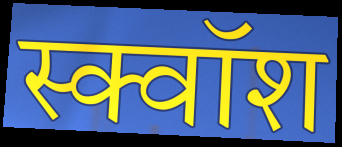
स्क्वॉश